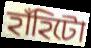
হাঁহিটো